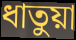
ধাতুয়া